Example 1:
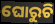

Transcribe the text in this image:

ଘୋରୁଚି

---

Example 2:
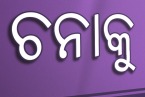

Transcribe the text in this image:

ଚନାକୁ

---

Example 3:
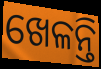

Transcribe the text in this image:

ଖେଳନ୍ତି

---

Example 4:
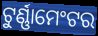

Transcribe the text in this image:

ଟୁର୍ଣ୍ଣାମେଂଟର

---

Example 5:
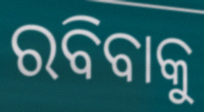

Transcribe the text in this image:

ରବିବାକୁ